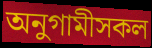
অনুগামীসকল